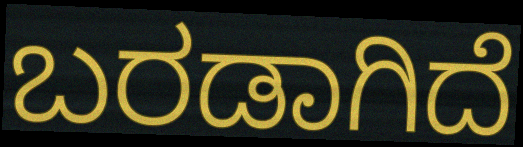
ಬರಡಾಗಿದೆ